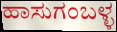
ಹಾಸುಗಂಬಳ್ಳ